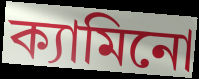
ক্যামিনো